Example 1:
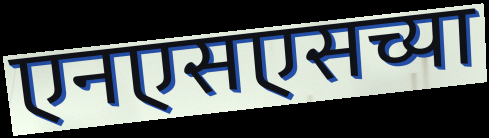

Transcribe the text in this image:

एनएसएसच्या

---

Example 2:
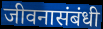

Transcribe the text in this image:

जीवनासंबंधी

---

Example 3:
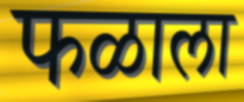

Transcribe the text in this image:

फळाला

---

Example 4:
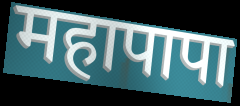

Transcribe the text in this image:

महापापा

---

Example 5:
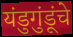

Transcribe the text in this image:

यंडुगुंडूंचे